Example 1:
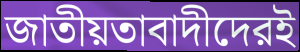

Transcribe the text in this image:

জাতীয়তাবাদীদেরই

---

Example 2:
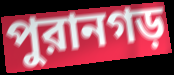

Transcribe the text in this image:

পুরানগড়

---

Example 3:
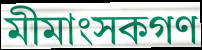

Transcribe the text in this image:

মীমাংসকগণ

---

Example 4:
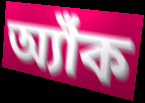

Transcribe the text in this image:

অ্যাঁক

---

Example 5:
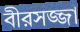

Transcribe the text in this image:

বীরসজ্জা